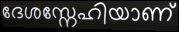
ദേശസ്നേഹിയാണ്